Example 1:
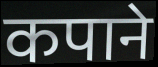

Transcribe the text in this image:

कपाने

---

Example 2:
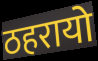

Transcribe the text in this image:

ठहरायो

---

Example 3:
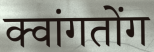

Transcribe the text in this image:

क्वांगतोंग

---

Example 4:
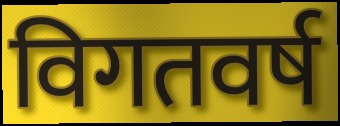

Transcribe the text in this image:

विगतवर्ष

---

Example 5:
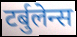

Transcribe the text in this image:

टर्बुलेन्स